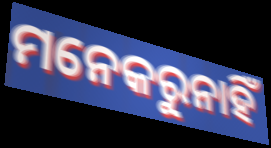
ମନେକରୁନାହିଁ